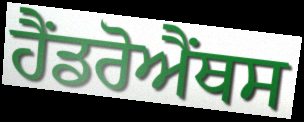
ਹੈਂਡਰੋਐਂਥਸ